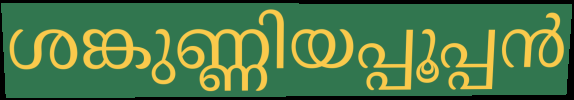
ശങ്കുണ്ണിയപ്പൂപ്പൻ